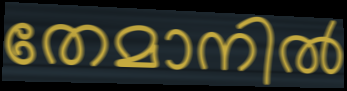
തേമാനിൽ